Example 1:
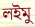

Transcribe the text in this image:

লইমু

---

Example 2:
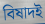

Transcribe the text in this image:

বিষাদই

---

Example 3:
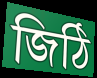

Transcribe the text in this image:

জিঠি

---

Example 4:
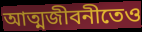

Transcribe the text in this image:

আত্মজীবনীতেও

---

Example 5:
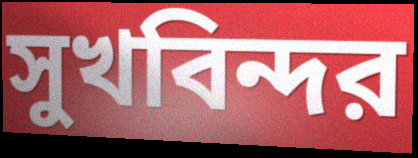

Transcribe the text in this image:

সুখবিন্দর